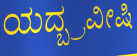
ಯದ್ಬ್ರವೀಷಿ